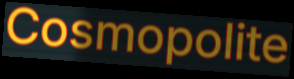
Cosmopolite